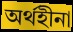
অর্থহীনা